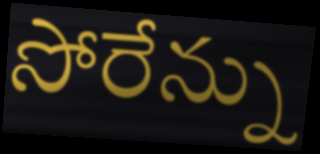
సోరేన్ను